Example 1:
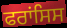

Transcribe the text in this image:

ਫਰਾਂਸਿਸ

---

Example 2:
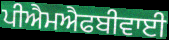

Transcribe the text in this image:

ਪੀਐਮਐਫਬੀਵਾਈ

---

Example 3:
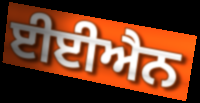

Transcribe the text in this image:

ਈਈਐਨ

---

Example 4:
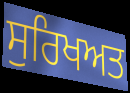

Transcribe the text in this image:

ਸੁਰਿਖਅਤ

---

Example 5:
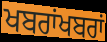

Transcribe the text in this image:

ਖਬਰਾਂਖਬਰਾਂ